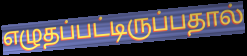
எழுதப்பட்டிருப்பதால்